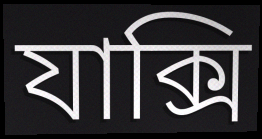
যাক্সি